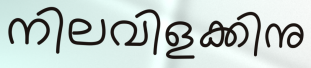
നിലവിളക്കിനു